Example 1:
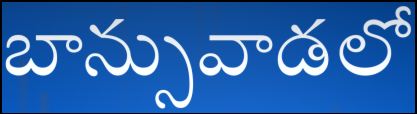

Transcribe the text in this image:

బాన్సువాడలో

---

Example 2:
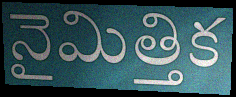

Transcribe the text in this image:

నైమిత్తిక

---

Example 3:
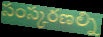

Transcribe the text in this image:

సంస్కరణల్ని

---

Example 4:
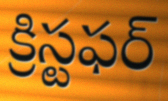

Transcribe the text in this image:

క్రిస్టఫర్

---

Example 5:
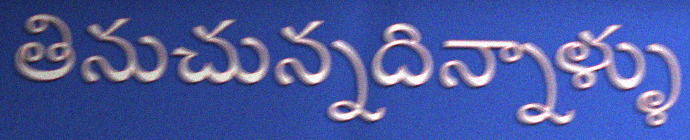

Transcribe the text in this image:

తినుచున్నదిన్నాళ్ళు